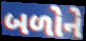
બળોને